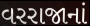
વરરાજાનાં